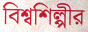
বিশ্বশিল্পীর